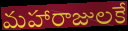
మహారాజులకే